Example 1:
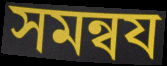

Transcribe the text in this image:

সমন্বয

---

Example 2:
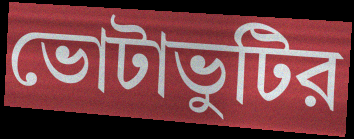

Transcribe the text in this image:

ভোটাভুটির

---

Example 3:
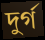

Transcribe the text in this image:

দুর্গ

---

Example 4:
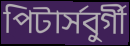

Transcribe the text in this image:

পিটার্সবুর্গী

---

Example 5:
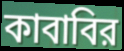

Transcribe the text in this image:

কাবাবির